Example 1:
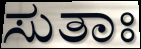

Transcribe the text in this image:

ಸುತಾಃ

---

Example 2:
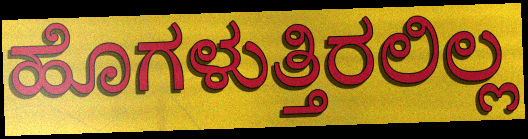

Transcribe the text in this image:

ಹೊಗಳುತ್ತಿರಲಿಲ್ಲ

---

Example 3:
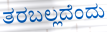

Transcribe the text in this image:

ತರಬಲ್ಲದೆಂದು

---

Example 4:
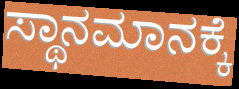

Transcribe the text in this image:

ಸ್ಥಾನಮಾನಕ್ಕೆ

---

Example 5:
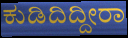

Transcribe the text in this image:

ಕುಡಿದಿದ್ದೀರಾ